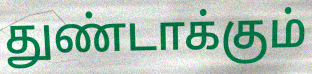
துண்டாக்கும்